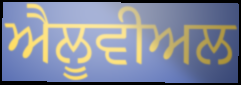
ਐਲੂਵੀਅਲ